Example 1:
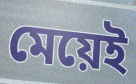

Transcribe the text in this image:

মেয়েই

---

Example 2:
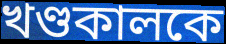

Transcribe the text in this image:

খণ্ডকালকে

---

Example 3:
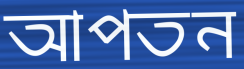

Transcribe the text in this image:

আপতন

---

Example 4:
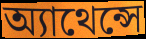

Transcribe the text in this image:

অ্যাথেন্সে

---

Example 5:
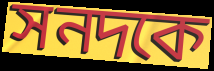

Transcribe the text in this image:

সনদকে